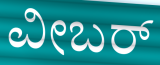
ವೀಬರ್